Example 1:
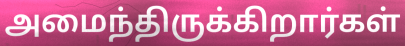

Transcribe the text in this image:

அமைந்திருக்கிறார்கள்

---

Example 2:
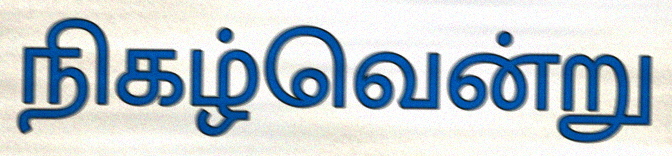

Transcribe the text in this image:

நிகழ்வென்று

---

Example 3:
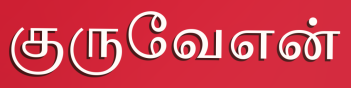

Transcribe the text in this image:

குருவேஎன்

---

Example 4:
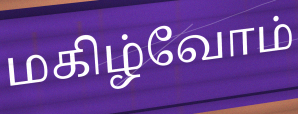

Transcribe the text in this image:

மகிழ்வோம்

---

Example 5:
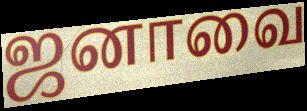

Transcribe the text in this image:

ஜனாவை